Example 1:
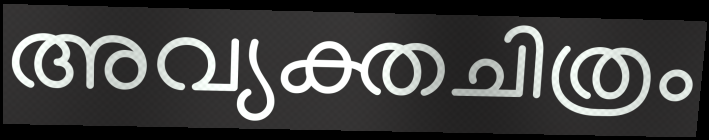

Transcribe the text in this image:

അവ്യക്തചിത്രം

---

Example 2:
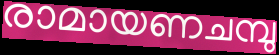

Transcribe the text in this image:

രാമായണചമ്പു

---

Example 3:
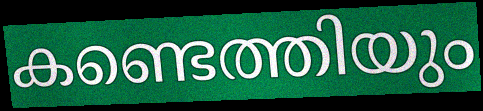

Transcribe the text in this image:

കണ്ടെത്തിയും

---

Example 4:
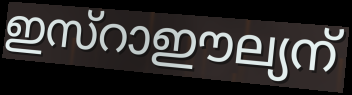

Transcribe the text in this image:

ഇസ്റാഈല്യന്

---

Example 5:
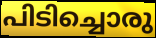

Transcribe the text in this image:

പിടിച്ചൊരു